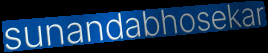
sunandabhosekar